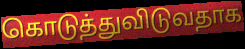
கொடுத்துவிடுவதாக